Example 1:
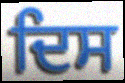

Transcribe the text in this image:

ਦਿਸ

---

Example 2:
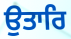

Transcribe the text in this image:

ਉਤਾਰਿ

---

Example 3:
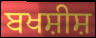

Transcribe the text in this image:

ਬਖਸ਼ੀਸ਼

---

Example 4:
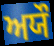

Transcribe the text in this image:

ਅਯੌ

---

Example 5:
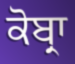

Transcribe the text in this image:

ਕੋਬ੍ਰਾ